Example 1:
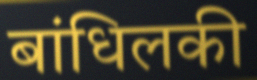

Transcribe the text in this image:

बांधिलकी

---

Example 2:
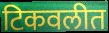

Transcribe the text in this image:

टिकवलीत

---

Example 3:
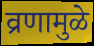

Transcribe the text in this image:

व्रणामुळे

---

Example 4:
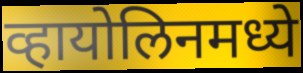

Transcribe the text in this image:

व्हायोलिनमध्ये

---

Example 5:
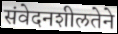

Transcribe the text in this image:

संवेदनशीलतेने